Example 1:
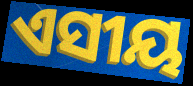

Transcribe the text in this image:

ଏସୀୟ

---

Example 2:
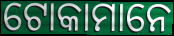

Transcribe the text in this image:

ଟୋକାମାନେ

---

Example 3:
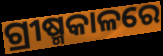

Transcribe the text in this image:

ଗ୍ରୀଷ୍ମକାଳରେ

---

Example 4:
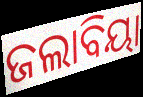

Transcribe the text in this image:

ଜଲାବିୟା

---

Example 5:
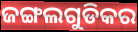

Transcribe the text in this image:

ଜଙ୍ଗଲଗୁଡିକର